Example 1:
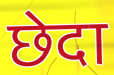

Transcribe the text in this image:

छेदा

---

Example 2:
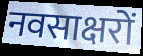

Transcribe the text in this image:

नवसाक्षरों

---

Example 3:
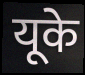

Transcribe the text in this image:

यूके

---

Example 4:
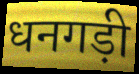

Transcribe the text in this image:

धनगड़ी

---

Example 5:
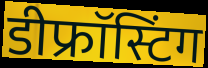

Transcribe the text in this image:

डीफ्रॉस्टिंग